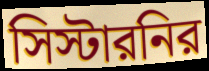
সিস্টারনির